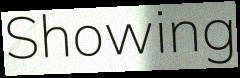
Showing